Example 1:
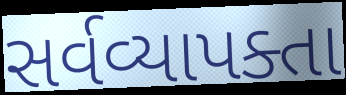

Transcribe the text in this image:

સર્વવ્યાપક્તા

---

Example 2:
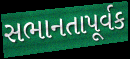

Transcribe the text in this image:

સભાનતાપૂર્વક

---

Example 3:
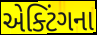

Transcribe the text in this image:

એક્ટિંગના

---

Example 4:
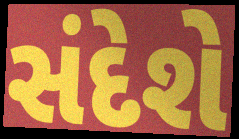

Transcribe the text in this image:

સંદેશે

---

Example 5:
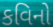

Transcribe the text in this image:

કવિનો